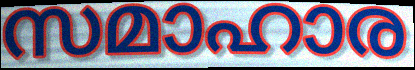
സമാഹാര